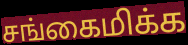
சங்கைமிக்க